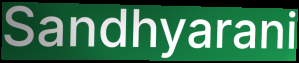
Sandhyarani